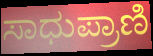
ಸಾಧುಪ್ರಾಣಿ